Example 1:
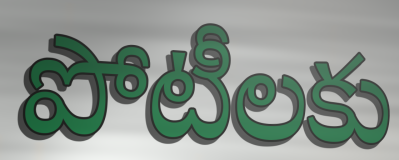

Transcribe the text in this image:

పోటీలకు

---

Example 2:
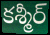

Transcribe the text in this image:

కశ్మీర్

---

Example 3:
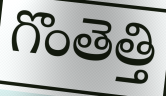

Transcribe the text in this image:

గొంతెత్తి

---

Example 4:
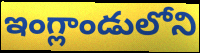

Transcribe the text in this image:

ఇంగ్లాండులోని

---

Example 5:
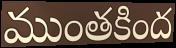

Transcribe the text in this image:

ముంతకింద